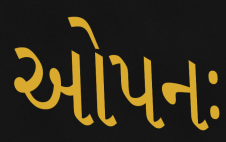
ઓપનઃ